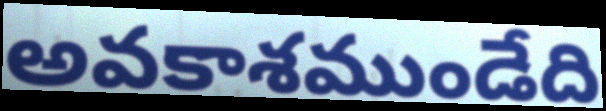
అవకాశముండేది